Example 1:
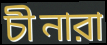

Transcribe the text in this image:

চীনারা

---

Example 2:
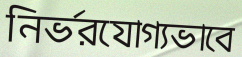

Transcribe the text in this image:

নির্ভরযোগ্যভাবে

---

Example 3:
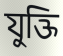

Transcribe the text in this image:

যুক্তি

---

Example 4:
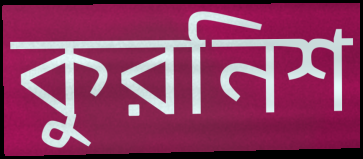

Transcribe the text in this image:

কুরনিশ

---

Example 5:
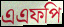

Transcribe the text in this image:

এএফপি